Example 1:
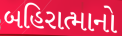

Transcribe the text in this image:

બહિરાત્માનો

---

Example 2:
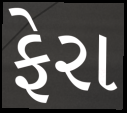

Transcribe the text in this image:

ફેરા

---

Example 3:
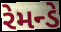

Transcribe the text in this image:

રેમન્ડે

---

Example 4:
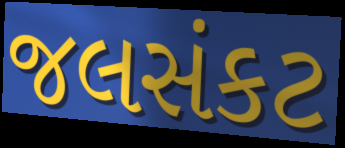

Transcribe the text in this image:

જલસંકટ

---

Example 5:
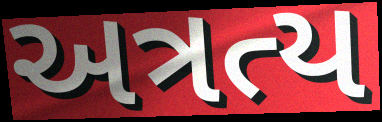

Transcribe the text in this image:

અત્રત્ય